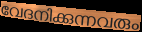
വേദനിക്കുന്നവരും